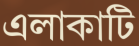
এলাকাটি